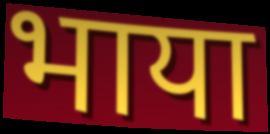
भाया